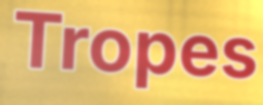
Tropes